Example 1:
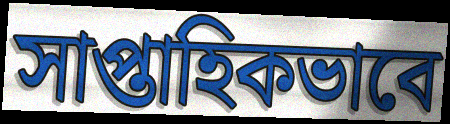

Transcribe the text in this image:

সাপ্তাহিকভাবে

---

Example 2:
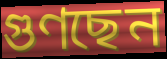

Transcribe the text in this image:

গুণছেন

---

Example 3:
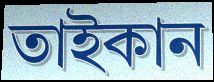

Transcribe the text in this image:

তাইকান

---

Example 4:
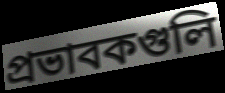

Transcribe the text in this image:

প্রভাবকগুলি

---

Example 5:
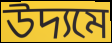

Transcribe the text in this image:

উদ্যমে